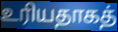
உரியதாகத்